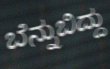
ಬೆನ್ನುಬಿದ್ದು